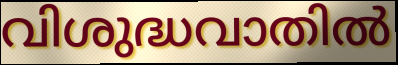
വിശുദ്ധവാതിൽ